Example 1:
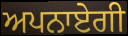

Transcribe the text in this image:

ਅਪਨਾਏਗੀ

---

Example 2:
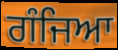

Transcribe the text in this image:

ਗੰਜਿਆ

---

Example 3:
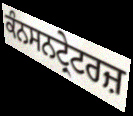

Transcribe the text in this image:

ਕੰਨਸਨਟ੍ਰੇਟਰਜ਼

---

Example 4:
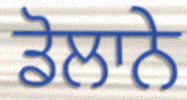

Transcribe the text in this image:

ਡੋਲਾਨੇ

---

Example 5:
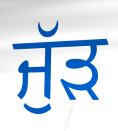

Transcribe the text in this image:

ਜੁੱੜ